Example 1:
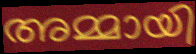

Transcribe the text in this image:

അമ്മായി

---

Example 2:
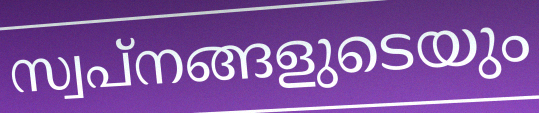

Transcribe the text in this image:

സ്വപ്നങ്ങളുടെയും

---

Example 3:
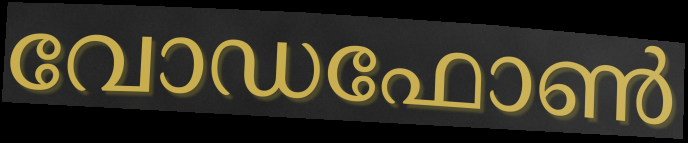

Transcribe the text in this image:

വോഡഫോൺ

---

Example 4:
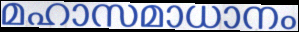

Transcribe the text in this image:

മഹാസമാധാനം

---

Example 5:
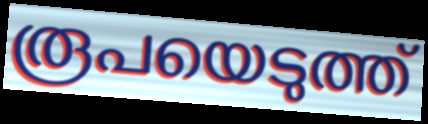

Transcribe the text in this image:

രൂപയെടുത്ത്